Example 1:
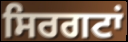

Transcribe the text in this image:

ਸਿਰਗਟਾਂ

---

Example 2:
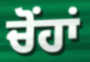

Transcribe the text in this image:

ਚੋਂਹਾਂ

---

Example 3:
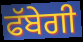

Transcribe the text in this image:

ਫੱਬੇਗੀ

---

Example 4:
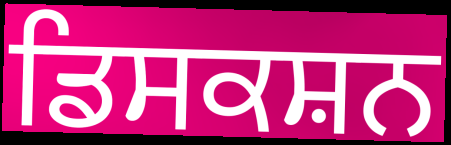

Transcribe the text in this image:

ਡਿਸਕਸ਼ਨ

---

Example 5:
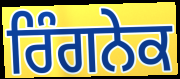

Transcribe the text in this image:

ਰਿੰਗਨੇਕ